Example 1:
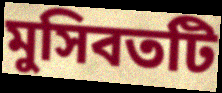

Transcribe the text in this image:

মুসিবতটি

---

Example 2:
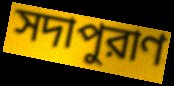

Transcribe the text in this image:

সদাপুরাণ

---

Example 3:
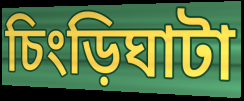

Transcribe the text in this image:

চিংড়িঘাটা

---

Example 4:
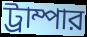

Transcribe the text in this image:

ট্রাম্পার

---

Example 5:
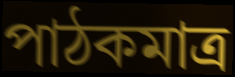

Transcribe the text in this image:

পাঠকমাত্র